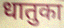
धातुका